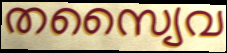
തസ്യൈവ